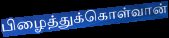
பிழைத்துக்கொள்வான்